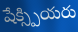
షేక్స్పియరు